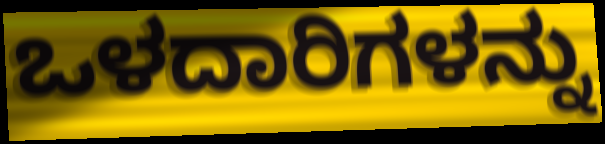
ಒಳದಾರಿಗಳನ್ನು